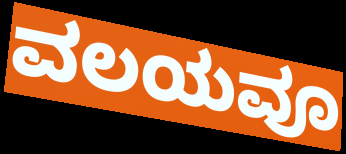
ವಲಯವೂ